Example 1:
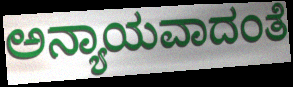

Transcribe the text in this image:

ಅನ್ಯಾಯವಾದಂತೆ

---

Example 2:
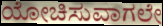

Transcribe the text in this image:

ಯೋಚಿಸುವಾಗಲೇ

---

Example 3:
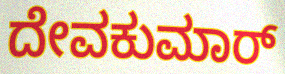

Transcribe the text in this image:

ದೇವಕುಮಾರ್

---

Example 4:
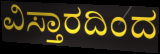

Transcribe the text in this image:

ವಿಸ್ತಾರದಿಂದ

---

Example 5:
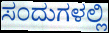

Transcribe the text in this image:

ಸಂದುಗಳಲ್ಲಿ